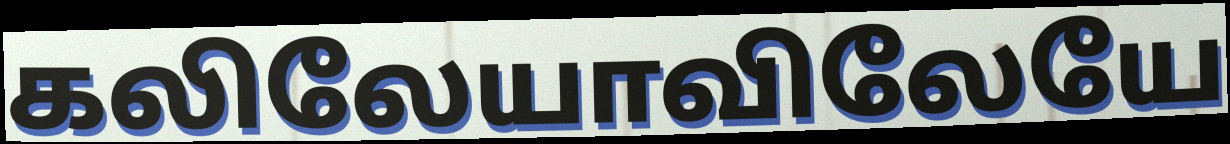
கலிலேயாவிலேயே